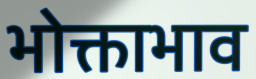
भोक्ताभाव